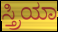
ಸ್ತ್ರಿಯಾ